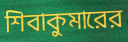
শিবাকুমারের